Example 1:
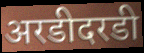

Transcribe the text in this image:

अरडीदरडी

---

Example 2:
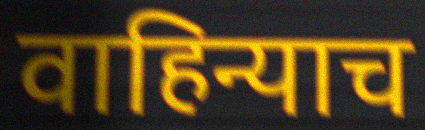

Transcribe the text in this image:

वाहिन्याच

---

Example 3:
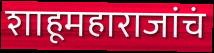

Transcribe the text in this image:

शाहूमहाराजांचं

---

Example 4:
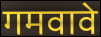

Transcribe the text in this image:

गमवावे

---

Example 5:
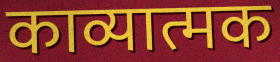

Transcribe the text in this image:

काव्यात्मक